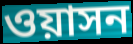
ওয়াসন